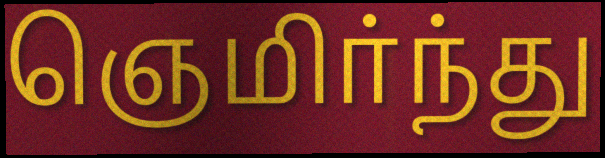
ஞெமிர்ந்து